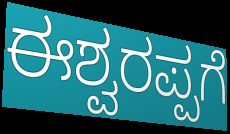
ಈಶ್ವರಪ್ಪಗೆ